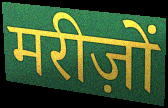
मरीज़ों